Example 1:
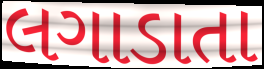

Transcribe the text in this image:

લગાડાતા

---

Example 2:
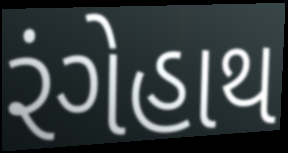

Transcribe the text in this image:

રંગેહાથ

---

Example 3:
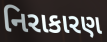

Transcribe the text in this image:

નિરાકારણ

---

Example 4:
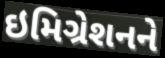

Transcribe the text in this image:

ઇમિગ્રેશનને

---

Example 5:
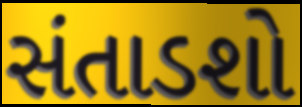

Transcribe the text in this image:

સંતાડશો